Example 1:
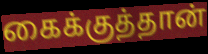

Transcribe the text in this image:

கைக்குத்தான்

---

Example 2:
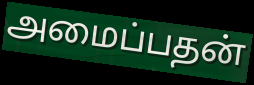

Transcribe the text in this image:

அமைப்பதன்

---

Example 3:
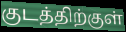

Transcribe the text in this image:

குடத்திற்குள்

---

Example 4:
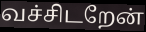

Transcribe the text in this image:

வச்சிடறேன்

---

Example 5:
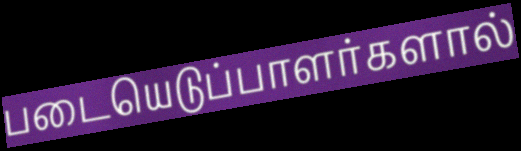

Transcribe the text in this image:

படையெடுப்பாளர்களால்